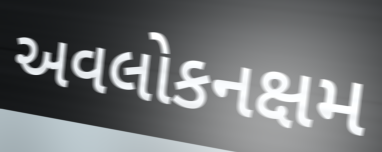
અવલોકનક્ષમ